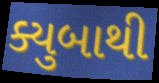
ક્યુબાથી